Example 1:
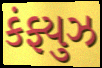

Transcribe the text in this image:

કંફ્યુઝ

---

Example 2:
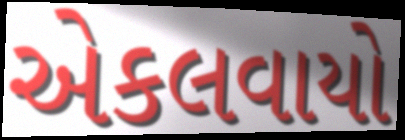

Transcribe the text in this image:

એકલવાયો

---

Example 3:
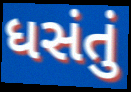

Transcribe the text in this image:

ધસંતું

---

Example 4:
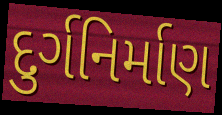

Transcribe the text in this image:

દુર્ગનિર્માણ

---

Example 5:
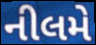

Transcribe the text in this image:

નીલમે